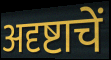
अदृष्टाचें